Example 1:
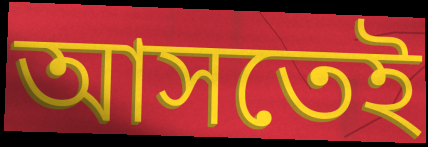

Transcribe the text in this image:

আসতেই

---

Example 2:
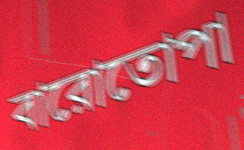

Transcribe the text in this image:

বারোতোপা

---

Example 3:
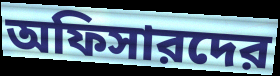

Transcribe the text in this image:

অফিসারদের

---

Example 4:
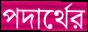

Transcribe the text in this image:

পদার্থের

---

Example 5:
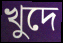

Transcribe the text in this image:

খুদে